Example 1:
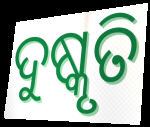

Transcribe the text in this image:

ଦୁଷ୍କୃତି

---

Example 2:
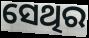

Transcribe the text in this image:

ସେଥିର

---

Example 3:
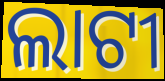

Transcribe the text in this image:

ଲାଟୀ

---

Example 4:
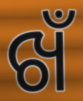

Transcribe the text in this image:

ଖଁ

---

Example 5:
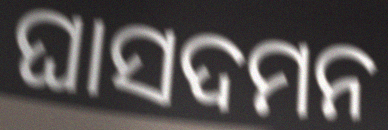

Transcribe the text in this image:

ଘାସଦମନ